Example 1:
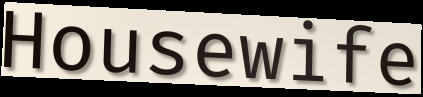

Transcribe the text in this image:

Housewife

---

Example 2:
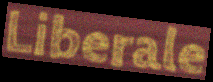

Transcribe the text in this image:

Liberale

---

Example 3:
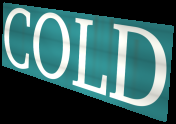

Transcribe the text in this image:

COLD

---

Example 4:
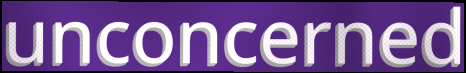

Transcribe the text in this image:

unconcerned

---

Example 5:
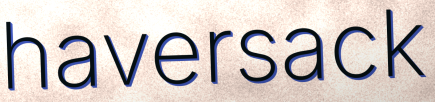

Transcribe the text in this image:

haversack